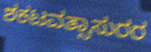
ಶಕಟವತ್ಸಾಸುರರ